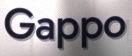
Gappo